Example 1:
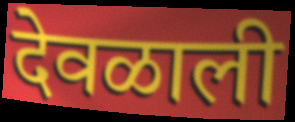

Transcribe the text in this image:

देवळाली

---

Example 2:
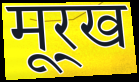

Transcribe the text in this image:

मूर्ख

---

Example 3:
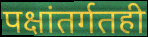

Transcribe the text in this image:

पक्षांतर्गतही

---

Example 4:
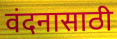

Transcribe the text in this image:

वंदनासाठी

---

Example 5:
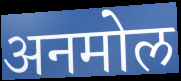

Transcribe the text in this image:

अनमोल